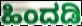
ಹಿಂದಡಿ